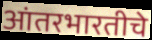
आंतरभारतीचे